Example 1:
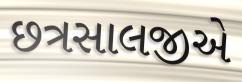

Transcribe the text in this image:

છત્રસાલજીએ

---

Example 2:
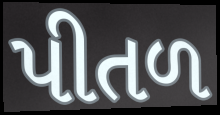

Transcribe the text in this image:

પીતળ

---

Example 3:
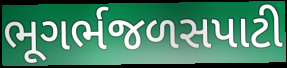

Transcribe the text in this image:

ભૂગર્ભજળસપાટી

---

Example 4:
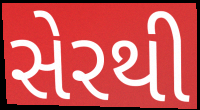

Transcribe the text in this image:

સેરથી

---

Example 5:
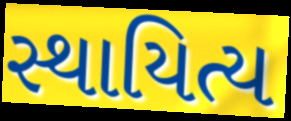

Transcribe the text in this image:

સ્થાયિત્ય